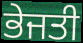
ਭੇਜਤੀ